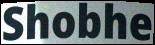
Shobhe